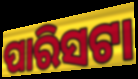
ପାରିସଟା